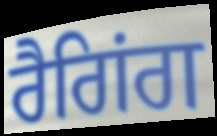
ਰੈਗਿਂਗ